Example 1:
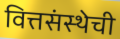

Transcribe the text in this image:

वित्तसंस्थेची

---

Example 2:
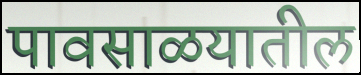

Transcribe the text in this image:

पावसाळयातील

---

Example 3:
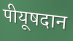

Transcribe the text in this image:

पीयूषदान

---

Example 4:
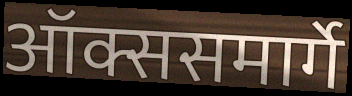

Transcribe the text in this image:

ऑक्ससमार्गे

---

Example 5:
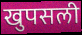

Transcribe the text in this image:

खुपसली